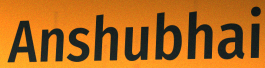
Anshubhai